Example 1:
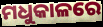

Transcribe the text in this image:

ମଧୁକାଳରେ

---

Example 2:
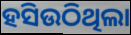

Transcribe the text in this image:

ହସିଉଠିଥିଲା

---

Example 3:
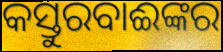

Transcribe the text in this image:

କସ୍ତୁରବାଈଙ୍କର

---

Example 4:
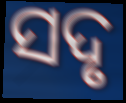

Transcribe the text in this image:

ସଦୃ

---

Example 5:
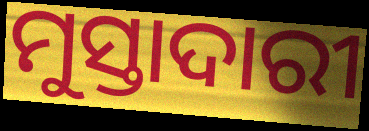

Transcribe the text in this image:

ମୁସ୍ତାଦାରୀ